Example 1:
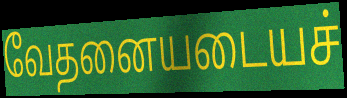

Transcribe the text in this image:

வேதனையடையச்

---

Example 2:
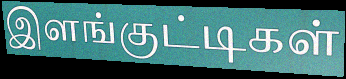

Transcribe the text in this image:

இளங்குட்டிகள்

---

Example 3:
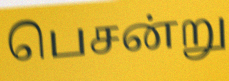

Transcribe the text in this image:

பெசன்று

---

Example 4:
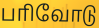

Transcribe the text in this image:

பரிவோடு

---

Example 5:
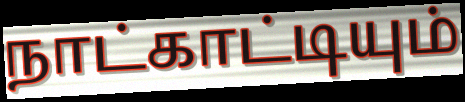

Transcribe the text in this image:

நாட்காட்டியும்